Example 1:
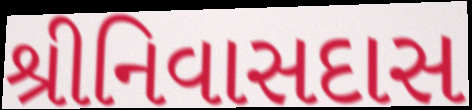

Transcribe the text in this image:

શ્રીનિવાસદાસ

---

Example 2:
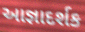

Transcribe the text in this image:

આજ્ઞાદર્શક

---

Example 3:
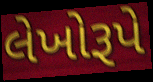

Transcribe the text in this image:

લેખોરૂપે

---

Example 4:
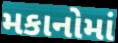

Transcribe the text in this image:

મકાનોમાં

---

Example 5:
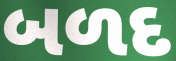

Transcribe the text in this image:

બળદ